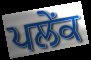
ਪਲੇਂਕ